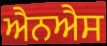
ਐਨਐਸ